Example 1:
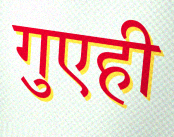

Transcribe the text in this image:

गुएही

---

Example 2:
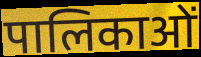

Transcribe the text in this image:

पालिकाओं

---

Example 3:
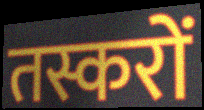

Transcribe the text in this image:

तस्करों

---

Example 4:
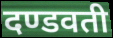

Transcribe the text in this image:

दण्डवती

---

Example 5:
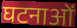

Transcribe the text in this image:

घटनाओं